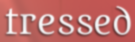
tressed